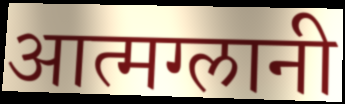
आत्मग्लानी